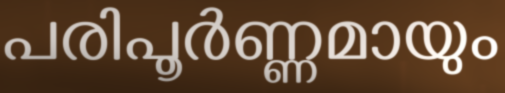
പരിപൂർണ്ണമായും